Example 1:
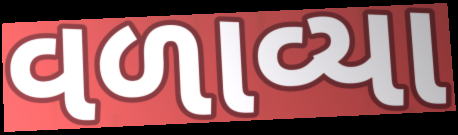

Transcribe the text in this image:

વળાવ્યા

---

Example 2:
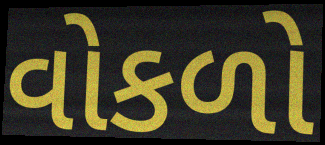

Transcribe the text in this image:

વોકળો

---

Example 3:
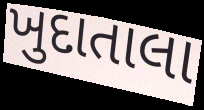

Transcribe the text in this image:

ખુદાતાલા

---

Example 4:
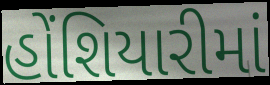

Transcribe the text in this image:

હોંશિયારીમાં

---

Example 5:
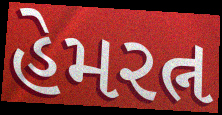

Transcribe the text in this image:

હેમરત્ન